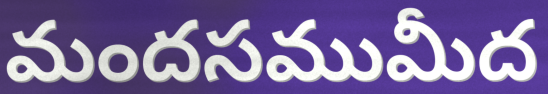
మందసముమీద